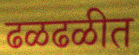
ढळढळीत